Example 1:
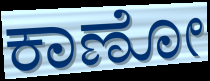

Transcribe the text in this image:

ಕಾಣೋ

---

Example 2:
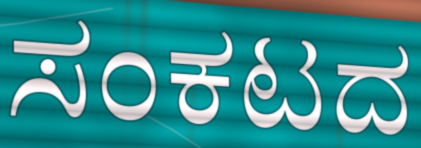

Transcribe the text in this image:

ಸಂಕಟದ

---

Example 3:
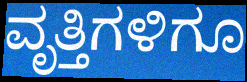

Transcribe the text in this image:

ವೃತ್ತಿಗಳಿಗೂ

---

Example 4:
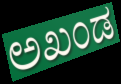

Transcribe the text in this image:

ಅಖಂಡ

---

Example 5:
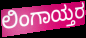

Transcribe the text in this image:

ಲಿಂಗಾಯ್ತರ